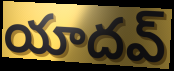
యాదవ్